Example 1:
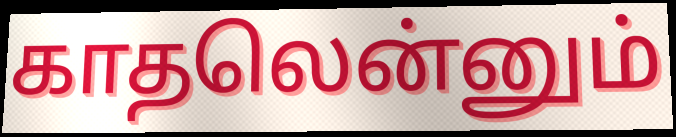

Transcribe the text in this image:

காதலென்னும்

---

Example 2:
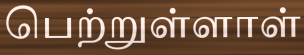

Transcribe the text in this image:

பெற்றுள்ளாள்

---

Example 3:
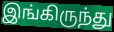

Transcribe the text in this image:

இங்கிருந்து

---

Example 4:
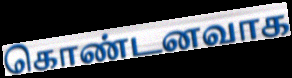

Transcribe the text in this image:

கொண்டனவாக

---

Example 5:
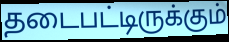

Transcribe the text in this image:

தடைபட்டிருக்கும்